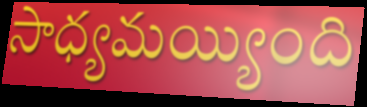
సాధ్యమయ్యింది